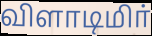
விளாடிமிர்